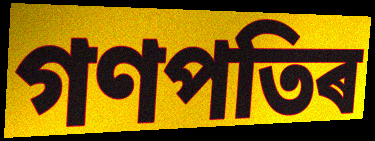
গণপতিৰ